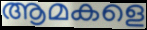
ആമകളെ